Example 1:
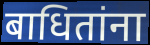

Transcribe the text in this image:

बाधितांना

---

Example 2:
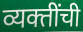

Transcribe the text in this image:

व्यक्‍तींची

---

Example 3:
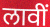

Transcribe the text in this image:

लावीं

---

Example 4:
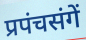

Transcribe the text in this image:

प्रपंचसंगें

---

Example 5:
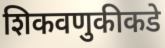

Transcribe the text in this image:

शिकवणुकीकडे